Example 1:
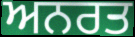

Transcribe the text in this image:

ਅਨਰਤ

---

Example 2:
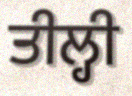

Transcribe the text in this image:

ਤੀਲ੍ਹੀ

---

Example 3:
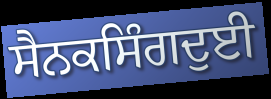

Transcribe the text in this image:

ਸੈਨਕਸਿੰਗਦੁਈ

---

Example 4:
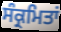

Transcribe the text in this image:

ਸੰਕ੍ਰਮਿਤਾਂ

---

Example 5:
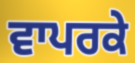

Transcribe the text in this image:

ਵਾਪਰਕੇ